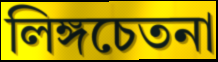
লিঙ্গচেতনা